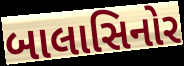
બાલાસિનોર